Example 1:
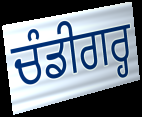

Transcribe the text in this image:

ਚੰਡੀਗਰ੍ਹ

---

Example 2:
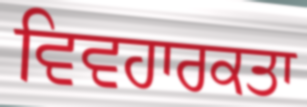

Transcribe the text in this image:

ਵਿਵਹਾਰਕਤਾ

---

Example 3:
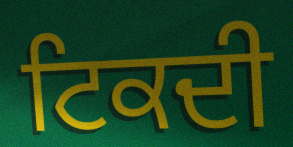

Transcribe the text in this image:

ਟਿਕਦੀ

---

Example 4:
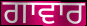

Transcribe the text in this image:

ਗਾਵਾਰ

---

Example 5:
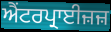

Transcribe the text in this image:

ਐਂਟਰਪ੍ਰਾਈਜ਼ਜ਼